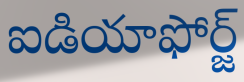
ఐడియాఫోర్జ్